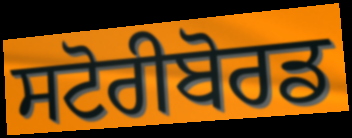
ਸਟੋਰੀਬੋਰਡ